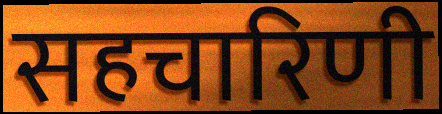
सहचारिणी